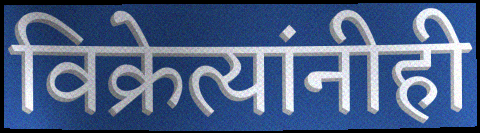
विक्रेत्यांनीही